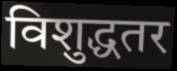
विशुद्धतर